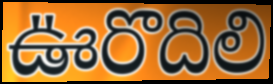
ఊరొదిలి